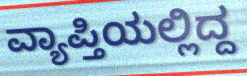
ವ್ಯಾಪ್ತಿಯಲ್ಲಿದ್ದ